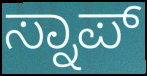
ಸ್ನಾಪ್